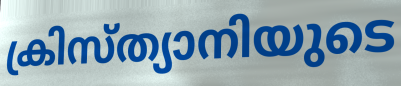
ക്രിസ്ത്യാനിയുടെ